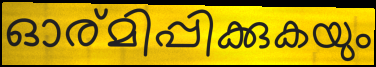
ഓര്മിപ്പിക്കുകയും